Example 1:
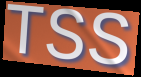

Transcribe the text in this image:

TSS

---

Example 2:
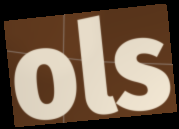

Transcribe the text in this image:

ols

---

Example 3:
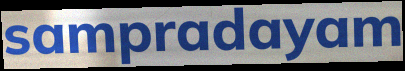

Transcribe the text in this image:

sampradayam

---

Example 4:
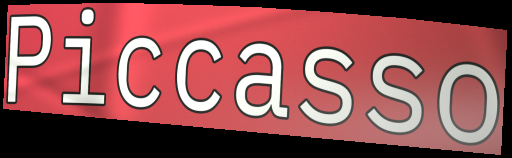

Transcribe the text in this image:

Piccasso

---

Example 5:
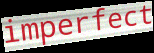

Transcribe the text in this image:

imperfect